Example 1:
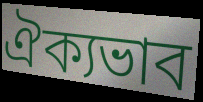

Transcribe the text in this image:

ঐক্যভাব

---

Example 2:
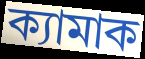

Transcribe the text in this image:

ক্যামাক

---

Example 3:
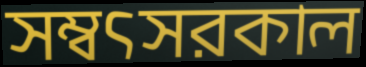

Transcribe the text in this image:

সম্বৎসরকাল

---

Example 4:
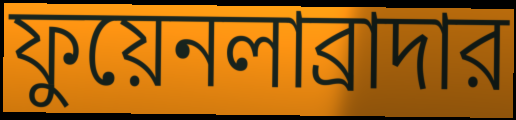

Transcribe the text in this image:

ফুয়েনলাব্রাদার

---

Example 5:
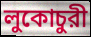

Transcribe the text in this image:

লুকোচুরী